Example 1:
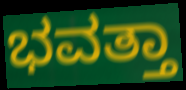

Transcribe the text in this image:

ಭವತ್ತಾ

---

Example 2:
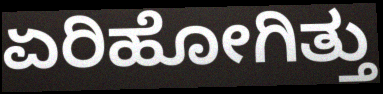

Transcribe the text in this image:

ಏರಿಹೋಗಿತ್ತು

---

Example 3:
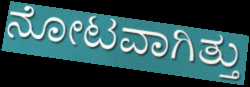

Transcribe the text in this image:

ನೋಟವಾಗಿತ್ತು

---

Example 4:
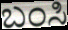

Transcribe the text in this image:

ಬಂಸಿ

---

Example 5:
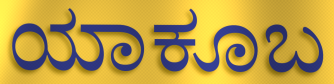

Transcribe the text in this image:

ಯಾಕೂಬ